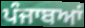
ਪੰਜਾਬਆਂ